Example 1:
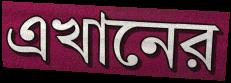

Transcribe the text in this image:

এখানের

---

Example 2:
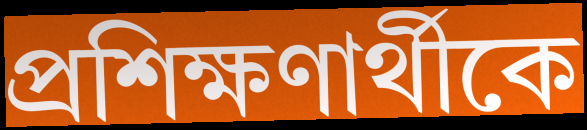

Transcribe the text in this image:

প্রশিক্ষণার্থীকে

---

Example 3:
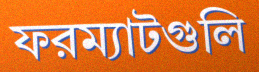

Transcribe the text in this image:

ফরম্যাটগুলি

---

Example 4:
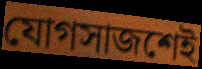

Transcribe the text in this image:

যোগসাজশেই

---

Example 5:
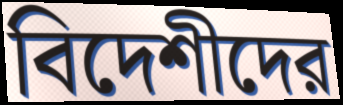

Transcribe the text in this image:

বিদেশীদের